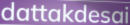
dattakdesai